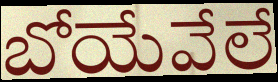
బోయేవేలే